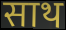
साथ